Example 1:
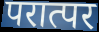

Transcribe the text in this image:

परात्पर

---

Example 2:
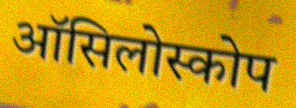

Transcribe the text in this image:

ऑसिलोस्कोप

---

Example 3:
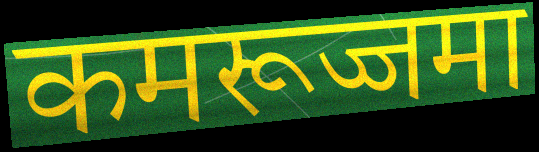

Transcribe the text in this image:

कमरूज्जमा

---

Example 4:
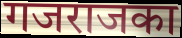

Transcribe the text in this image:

गजराजका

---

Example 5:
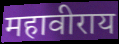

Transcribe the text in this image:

महावीराय